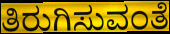
ತಿರುಗಿಸುವಂತೆ